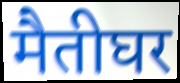
मैतीघर